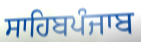
ਸਾਹਿਬਪੰਜਾਬ